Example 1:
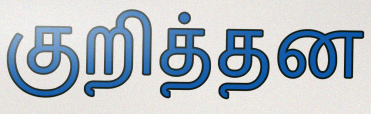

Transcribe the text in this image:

குறித்தன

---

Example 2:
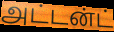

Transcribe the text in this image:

அட்டன்ட்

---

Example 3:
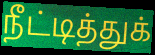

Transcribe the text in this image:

நீட்டித்துக்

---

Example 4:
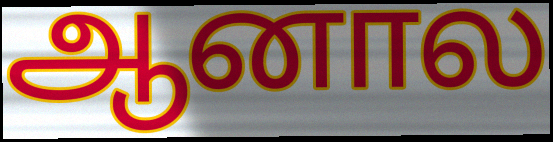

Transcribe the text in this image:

ஆனால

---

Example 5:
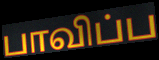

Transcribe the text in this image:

பாவிப்ப